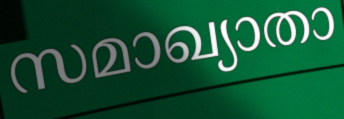
സമാഖ്യാതാ